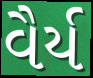
વૈર્ય